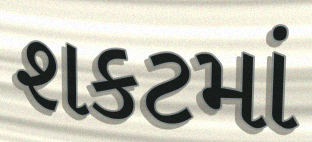
શકટમાં